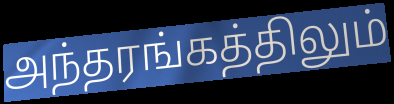
அந்தரங்கத்திலும்